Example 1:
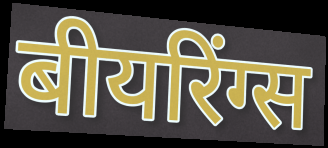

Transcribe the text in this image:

बीयरिंग्स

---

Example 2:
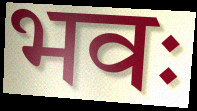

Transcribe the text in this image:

भवः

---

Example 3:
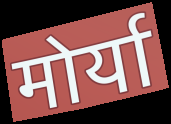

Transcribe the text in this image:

मोर्या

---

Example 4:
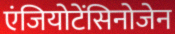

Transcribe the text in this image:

एंजियोटेंसिनोजेन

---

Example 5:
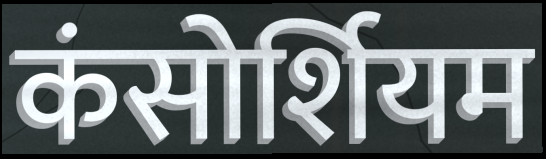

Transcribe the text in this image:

कंसोर्शियम